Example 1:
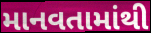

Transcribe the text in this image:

માનવતામાંથી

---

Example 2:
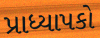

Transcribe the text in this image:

પ્રાધ્યાપકો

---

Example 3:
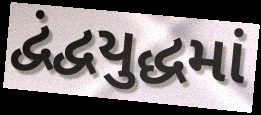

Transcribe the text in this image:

દ્વંદ્વયુદ્ધમાં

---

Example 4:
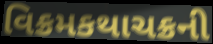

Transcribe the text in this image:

વિક્રમકથાચક્રની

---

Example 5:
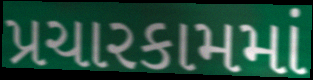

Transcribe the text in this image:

પ્રચારકામમાં